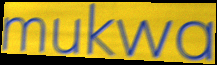
mukwa